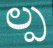
ల్ప